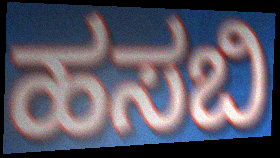
ಹಸಬಿ